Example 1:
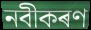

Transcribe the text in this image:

নবীকৰণ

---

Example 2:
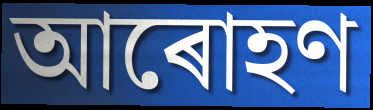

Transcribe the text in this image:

আৰোহণ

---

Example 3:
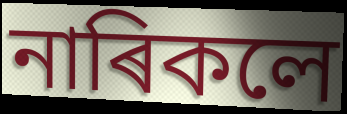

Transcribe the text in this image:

নাৰিকলে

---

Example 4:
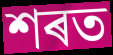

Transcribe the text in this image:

শৰত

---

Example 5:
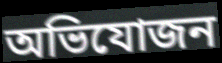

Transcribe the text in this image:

অভিযোজন